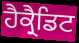
ਹੈਕ੍ਰੈਡਿਟ